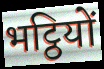
भट्ठियों